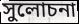
সুলোচনা